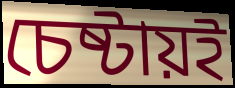
চেষ্টায়ই